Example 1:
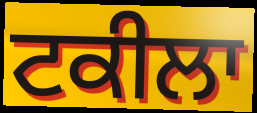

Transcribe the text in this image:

ਟਕੀਲਾ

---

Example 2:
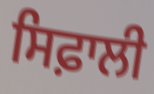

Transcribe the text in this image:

ਸਿਫ਼ਾਲੀ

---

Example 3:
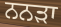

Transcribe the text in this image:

ਨਨੜਾ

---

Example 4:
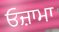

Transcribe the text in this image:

ਓਜ਼ਾਮਾ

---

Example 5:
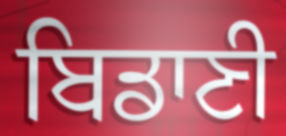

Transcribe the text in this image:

ਬਿਡਾਣੀ